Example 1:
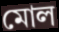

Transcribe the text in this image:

মোল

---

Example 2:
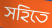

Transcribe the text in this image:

সহিতে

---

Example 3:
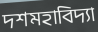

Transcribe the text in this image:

দশমহাবিদ্যা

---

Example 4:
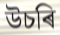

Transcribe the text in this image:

উচৰি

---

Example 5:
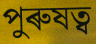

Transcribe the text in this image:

পুৰুষত্ব